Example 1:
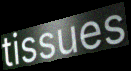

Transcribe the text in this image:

tissues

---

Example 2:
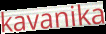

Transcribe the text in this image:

kavanika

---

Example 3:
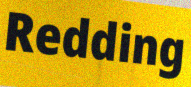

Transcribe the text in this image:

Redding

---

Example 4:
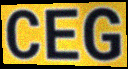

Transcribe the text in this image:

CEG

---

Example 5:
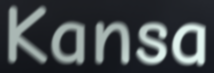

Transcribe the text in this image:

Kansa